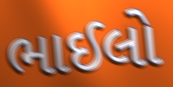
ભાઈલો